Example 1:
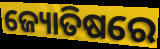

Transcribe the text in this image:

ଜ୍ୟୋତିଷରେ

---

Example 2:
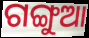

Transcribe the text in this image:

ଗଙ୍ଗୁଆ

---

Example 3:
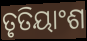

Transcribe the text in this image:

ତୃତିୟାଂଶ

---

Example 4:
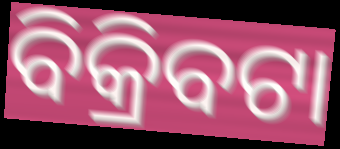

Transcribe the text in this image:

ବିକ୍ରିବଟା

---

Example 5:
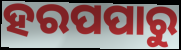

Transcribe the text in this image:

ହରପପାରୁ